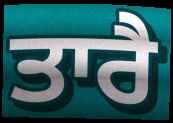
ਤਾਰੈ